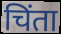
चिंता